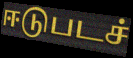
ஈடுபடச்